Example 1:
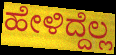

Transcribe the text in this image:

ಹೇಳಿದ್ದೆಲ್ಲ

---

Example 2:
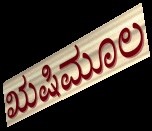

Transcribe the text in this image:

ಋಷಿಮೂಲ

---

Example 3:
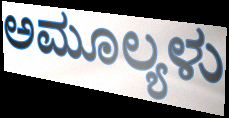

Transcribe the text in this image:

ಅಮೂಲ್ಯಳು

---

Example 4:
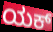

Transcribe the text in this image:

ಯಕ್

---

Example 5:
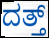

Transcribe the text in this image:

ದತ್ತ್